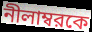
নীলাম্বরকে